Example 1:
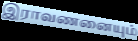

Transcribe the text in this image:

இராவணனையும்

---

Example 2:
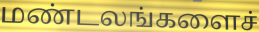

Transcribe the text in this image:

மண்டலங்களைச்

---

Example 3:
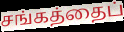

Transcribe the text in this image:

சங்கத்தைப்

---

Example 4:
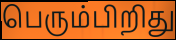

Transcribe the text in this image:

பெரும்பிறிது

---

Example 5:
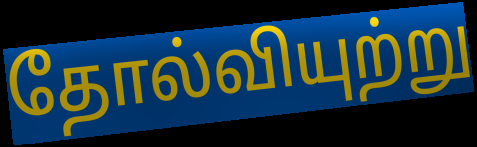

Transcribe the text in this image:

தோல்வியுற்று